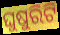
ଘୁଷୁରିଟି